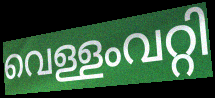
വെള്ളംവറ്റി